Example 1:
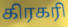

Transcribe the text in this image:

கிரகரி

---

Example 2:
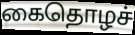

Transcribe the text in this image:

கைதொழச்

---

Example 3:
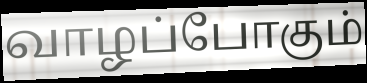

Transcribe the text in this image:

வாழப்போகும்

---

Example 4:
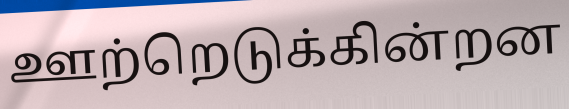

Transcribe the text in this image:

ஊற்றெடுக்கின்றன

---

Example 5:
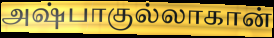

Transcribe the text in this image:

அஷ்பாகுல்லாகான்